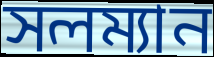
সলম্যান